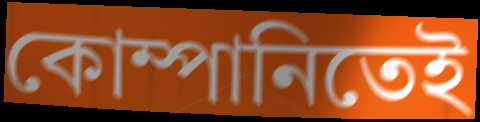
কোম্পানিতেই